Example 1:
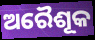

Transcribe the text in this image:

ଅରୈଶୂକ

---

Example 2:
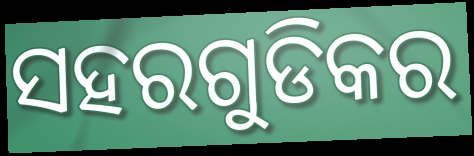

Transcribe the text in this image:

ସହରଗୁଡିକର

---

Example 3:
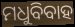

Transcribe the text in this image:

ମଧୁବିବାହ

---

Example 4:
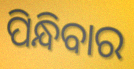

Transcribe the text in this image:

ପିନ୍ଧିବାର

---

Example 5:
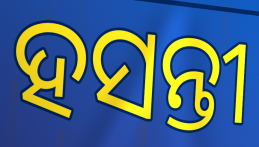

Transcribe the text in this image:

ହସନ୍ତୀ